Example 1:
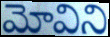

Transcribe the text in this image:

మోవిని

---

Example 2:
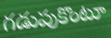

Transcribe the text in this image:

గడుపుకొంటూ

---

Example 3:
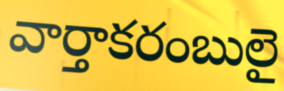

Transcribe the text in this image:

వార్తాకరంబులై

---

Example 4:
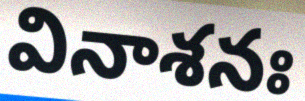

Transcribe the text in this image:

వినాశనః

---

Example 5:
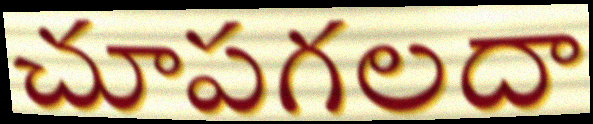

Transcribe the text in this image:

చూపగలదా